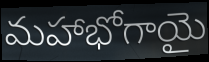
మహాభోగాయై